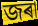
জৰা